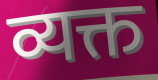
व्यक्त